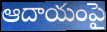
ఆదాయంపై